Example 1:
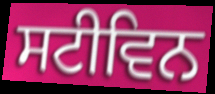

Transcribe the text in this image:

ਸਟੀਵਿਨ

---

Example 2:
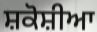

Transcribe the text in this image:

ਸ਼ਕੋਸ਼ੀਆ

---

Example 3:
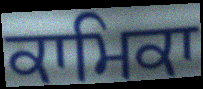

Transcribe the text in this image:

ਕਾਮਿਕਾ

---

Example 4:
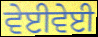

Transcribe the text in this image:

ਵੇਈਵੇਈ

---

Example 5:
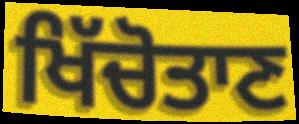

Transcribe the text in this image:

ਖਿੱਚੋਤਾਣ